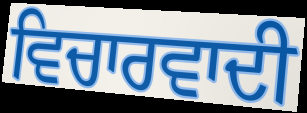
ਵਿਚਾਰਵਾਦੀ